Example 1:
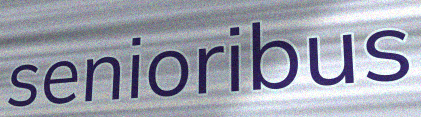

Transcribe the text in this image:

senioribus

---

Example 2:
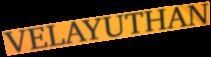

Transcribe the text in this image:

VELAYUTHAN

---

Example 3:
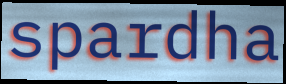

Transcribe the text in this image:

spardha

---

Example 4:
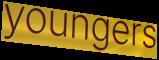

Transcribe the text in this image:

youngers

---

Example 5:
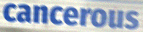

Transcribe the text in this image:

cancerous